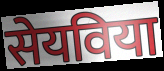
सेयविया